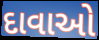
દાવાઓ